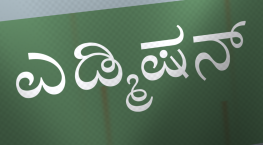
ಎಡ್ಮಿಷನ್